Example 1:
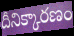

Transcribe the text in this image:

దీనిక్కారణం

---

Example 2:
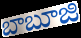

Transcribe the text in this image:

బాబూజి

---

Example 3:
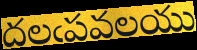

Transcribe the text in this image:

దలఁపవలయు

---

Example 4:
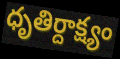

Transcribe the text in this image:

ధృతిర్దాక్ష్యం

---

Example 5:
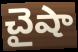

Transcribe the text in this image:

చైషా